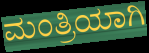
ಮಂತ್ರಿಯಾಗಿ